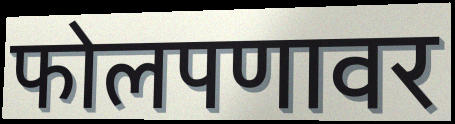
फोलपणावर